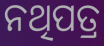
ନଥିପତ୍ର